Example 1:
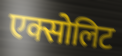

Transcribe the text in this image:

एक्सोलिट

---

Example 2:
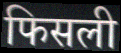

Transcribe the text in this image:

फिसली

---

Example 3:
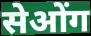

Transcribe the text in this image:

सेओंग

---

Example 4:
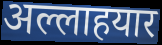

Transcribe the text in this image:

अल्लाहयार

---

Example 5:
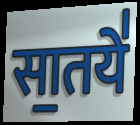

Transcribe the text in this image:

सा॒तये॑